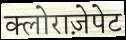
क्लोराज़ेपेट